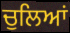
ਚੁਲਿਆਂ